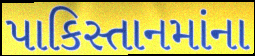
પાકિસ્તાનમાંના